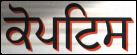
ਕੋਪਟਿਸ